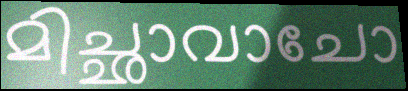
മിച്ഛാവാചോ